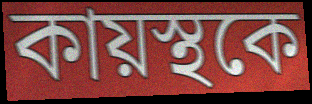
কায়স্থকে